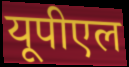
यूपीएल